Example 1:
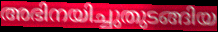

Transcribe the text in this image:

അഭിനയിച്ചുതുടങ്ങിയ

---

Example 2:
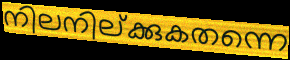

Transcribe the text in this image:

നിലനില്ക്കുകതന്നെ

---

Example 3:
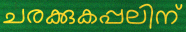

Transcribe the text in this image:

ചരക്കുകപ്പലിന്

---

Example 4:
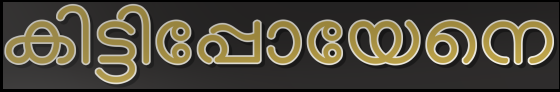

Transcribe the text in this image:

കിട്ടിപ്പോയേനെ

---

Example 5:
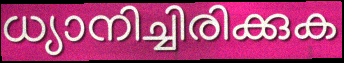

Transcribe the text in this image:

ധ്യാനിച്ചിരിക്കുക